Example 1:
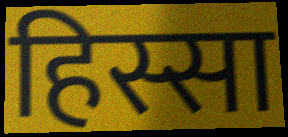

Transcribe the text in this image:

हिस्सा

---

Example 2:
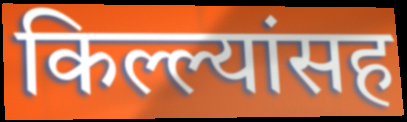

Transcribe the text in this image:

किल्ल्यांसह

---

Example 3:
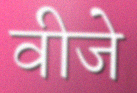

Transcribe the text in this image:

वीजे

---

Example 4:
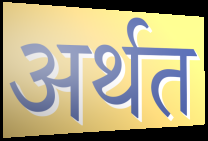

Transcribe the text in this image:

अर्थत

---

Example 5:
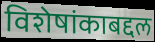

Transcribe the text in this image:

विशेषांकाबद्दल